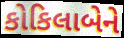
કોકિલાબેને